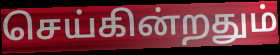
செய்கின்றதும்